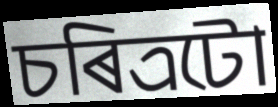
চৰিত্ৰটো